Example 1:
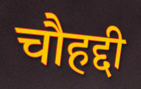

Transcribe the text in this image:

चौहद्दी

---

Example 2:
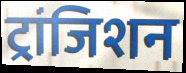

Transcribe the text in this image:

ट्रांजिशन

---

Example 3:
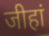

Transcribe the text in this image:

जीहां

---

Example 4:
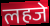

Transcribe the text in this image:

लहजे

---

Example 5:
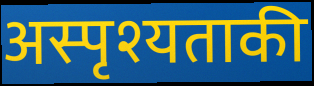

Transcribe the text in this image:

अस्पृश्यताकी